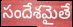
సందేశమైతే